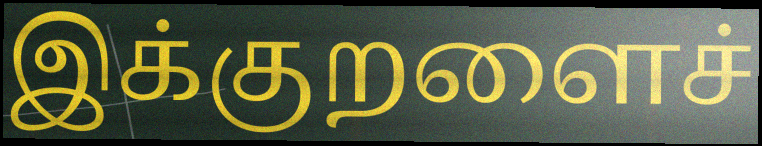
இக்குறளைச்